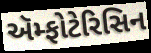
ઍમ્ફોટેરિસિન